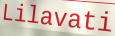
Lilavati